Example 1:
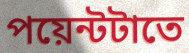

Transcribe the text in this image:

পয়েন্টটাতে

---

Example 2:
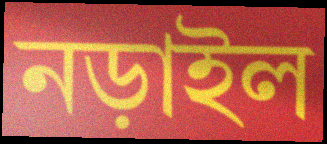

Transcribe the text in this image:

নড়াইল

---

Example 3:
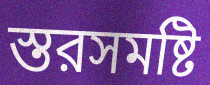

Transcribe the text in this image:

স্তরসমষ্টি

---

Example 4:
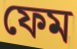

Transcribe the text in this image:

ফেম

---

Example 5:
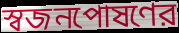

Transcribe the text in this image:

স্বজনপোষণের